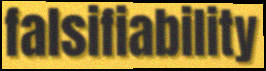
falsifiability